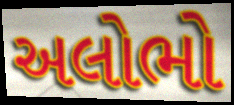
અલોભો